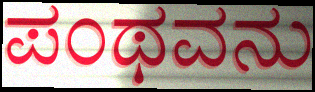
ಪಂಥವನು